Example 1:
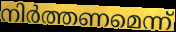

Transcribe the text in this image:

നിർത്തണമെന്ന്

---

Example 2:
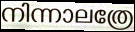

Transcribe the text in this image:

നിന്നാലത്രേ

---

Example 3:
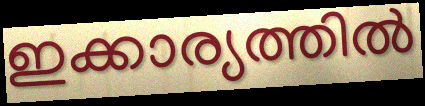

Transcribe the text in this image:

ഇക്കാര്യത്തിൽ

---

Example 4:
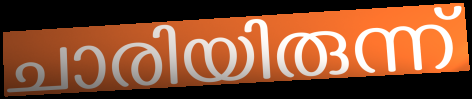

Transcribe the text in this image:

ചാരിയിരുന്ന്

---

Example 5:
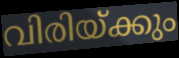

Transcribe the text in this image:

വിരിയ്ക്കും